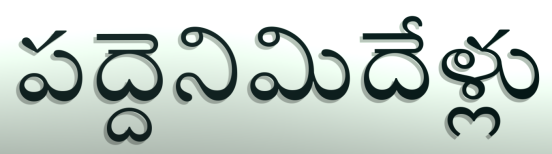
పద్దెనిమిదేళ్లు